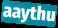
aaythu